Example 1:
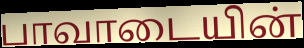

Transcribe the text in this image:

பாவாடையின்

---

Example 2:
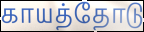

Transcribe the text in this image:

காயத்தோடு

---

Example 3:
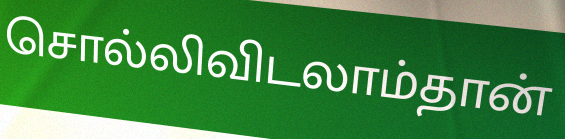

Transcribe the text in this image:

சொல்லிவிடலாம்தான்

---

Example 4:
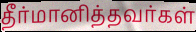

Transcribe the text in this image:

தீர்மானித்தவர்கள்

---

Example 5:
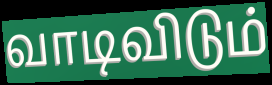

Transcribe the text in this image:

வாடிவிடும்